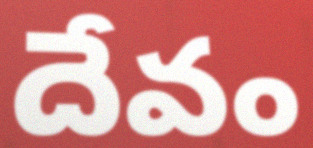
దేవం